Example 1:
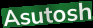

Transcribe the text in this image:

Asutosh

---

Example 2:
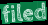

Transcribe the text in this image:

filed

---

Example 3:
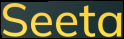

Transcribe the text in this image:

Seeta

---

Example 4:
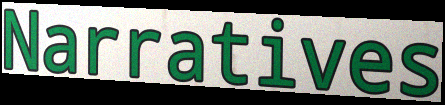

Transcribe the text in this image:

Narratives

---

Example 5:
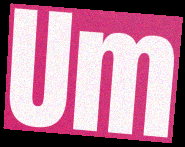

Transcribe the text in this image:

Um